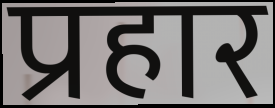
प्रहार